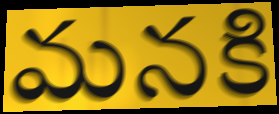
మనకి